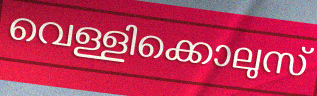
വെള്ളിക്കൊലുസ്